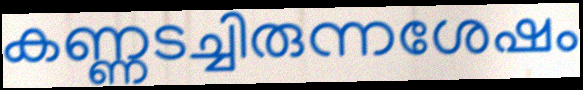
കണ്ണടച്ചിരുന്നശേഷം